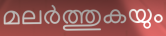
മലർത്തുകയും